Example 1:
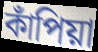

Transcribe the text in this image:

কাঁপিয়া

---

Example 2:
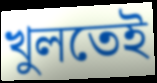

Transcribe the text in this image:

খুলতেই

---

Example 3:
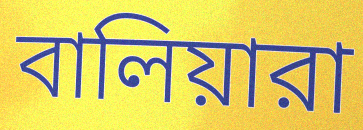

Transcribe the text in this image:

বালিয়ারা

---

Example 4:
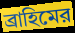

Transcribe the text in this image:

ব্রাহিমের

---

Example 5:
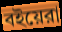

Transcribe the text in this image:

বইয়েরা